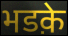
भडक़े